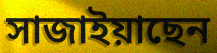
সাজাইয়াছেন